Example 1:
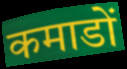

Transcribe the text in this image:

कमाडों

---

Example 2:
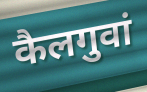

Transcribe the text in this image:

कैलगुवां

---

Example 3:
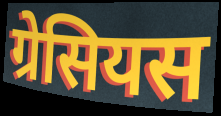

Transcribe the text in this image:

ग्रेसियस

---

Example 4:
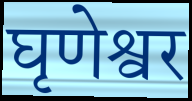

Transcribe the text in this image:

घृणेश्वर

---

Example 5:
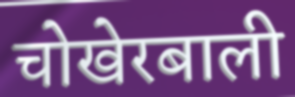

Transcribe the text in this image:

चोखेरबाली